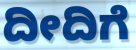
ದೀದಿಗೆ